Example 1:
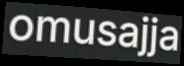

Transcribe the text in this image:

omusajja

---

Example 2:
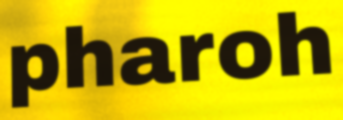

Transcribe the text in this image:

pharoh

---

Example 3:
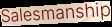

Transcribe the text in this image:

Salesmanship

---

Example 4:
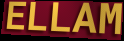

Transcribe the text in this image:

ELLAM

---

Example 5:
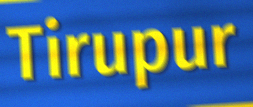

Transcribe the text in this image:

Tirupur